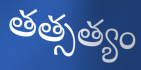
తత్సత్యం